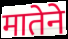
मातेने